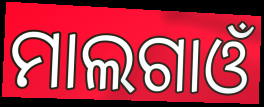
ମାଲଗାଓଁ